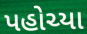
પહોચ્યા